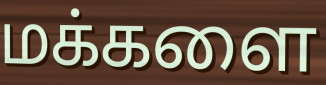
மக்களை